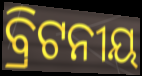
ବ୍ରିଟନୀୟ